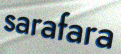
sarafara